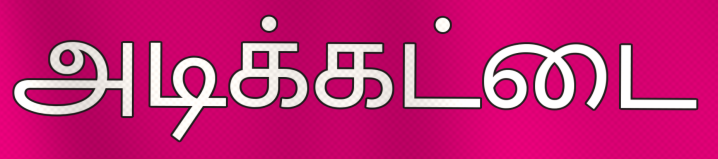
அடிக்கட்டை